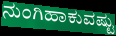
ನುಂಗಿಹಾಕುವಷ್ಟು